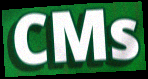
CMs